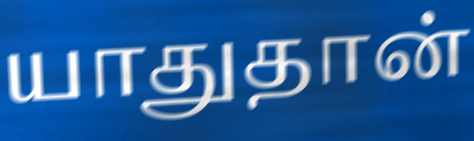
யாதுதான்